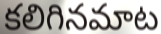
కలిగినమాట